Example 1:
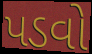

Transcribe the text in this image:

પડવો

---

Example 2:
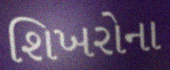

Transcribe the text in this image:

શિખરોના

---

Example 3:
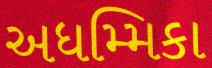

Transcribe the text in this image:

અધમ્મિકા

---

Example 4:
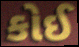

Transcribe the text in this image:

કોઈ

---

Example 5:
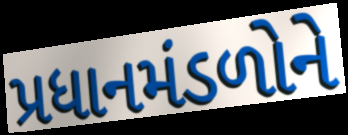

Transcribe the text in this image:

પ્રધાનમંડળોને